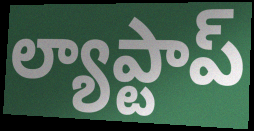
ల్యాప్టాప్